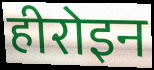
हीरोइन